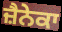
ਜ਼ੈਨੇਕਾ